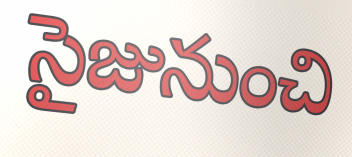
సైజునుంచి